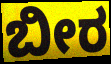
ಬೀರ